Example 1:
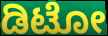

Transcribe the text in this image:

ಡಿಟೋ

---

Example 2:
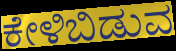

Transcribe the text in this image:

ಕೇಳಿಬಿಡುವ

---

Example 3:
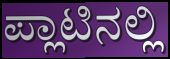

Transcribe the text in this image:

ಪ್ಲಾಟಿನಲ್ಲಿ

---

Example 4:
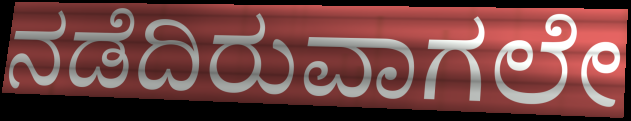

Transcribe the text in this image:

ನಡೆದಿರುವಾಗಲೇ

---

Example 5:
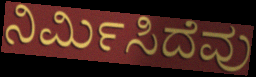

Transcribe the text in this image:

ನಿರ್ಮಿಸಿದೆವು